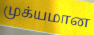
முக்யமான